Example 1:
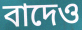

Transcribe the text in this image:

বাদেও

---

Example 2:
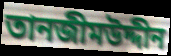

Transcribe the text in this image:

তানজীমউদ্দীন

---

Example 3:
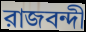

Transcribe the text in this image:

রাজবন্দী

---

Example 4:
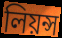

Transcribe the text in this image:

লিয়ন্স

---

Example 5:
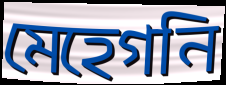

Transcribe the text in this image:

মেহেগনি